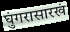
घुंगरासारखं